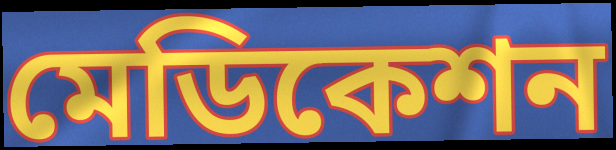
মেডিকেশন